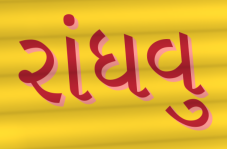
રાંધવુ